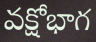
వక్షోభాగ